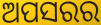
ଅପସରର